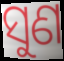
ସୁଣ